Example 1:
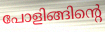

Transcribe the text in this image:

പോളിങ്ങിന്റെ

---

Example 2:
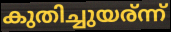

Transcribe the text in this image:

കുതിച്ചുയര്ന്ന്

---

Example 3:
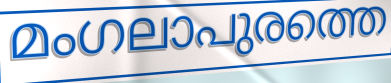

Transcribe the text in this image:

മംഗലാപുരത്തെ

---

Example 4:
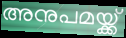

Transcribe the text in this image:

അനുപമയ്ക്ക്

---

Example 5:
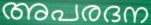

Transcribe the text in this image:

അപരദന